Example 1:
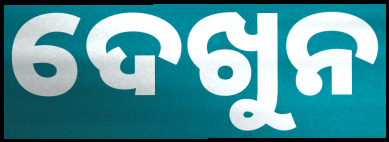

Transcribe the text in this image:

ଦେଖୁନ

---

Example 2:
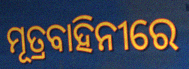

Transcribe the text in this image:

ମୂତ୍ରବାହିନୀରେ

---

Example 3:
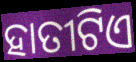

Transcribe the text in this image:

ହାତୀଟିଏ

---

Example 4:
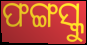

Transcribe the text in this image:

ଫଙ୍ଗସ୍କୁ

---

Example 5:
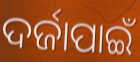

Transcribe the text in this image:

ଦର୍ଜାପାଇଁ